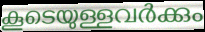
കൂടെയുള്ളവർക്കും